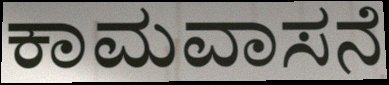
ಕಾಮವಾಸನೆ